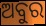
ଅବୁର